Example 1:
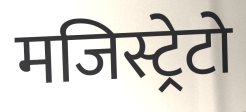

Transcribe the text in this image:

मजिस्ट्रेटो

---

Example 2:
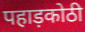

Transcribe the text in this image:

पहाड़कोठी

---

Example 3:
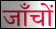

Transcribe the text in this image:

जाँचों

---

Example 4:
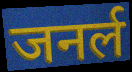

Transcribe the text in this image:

जनर्ल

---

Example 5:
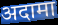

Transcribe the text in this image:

अदामा